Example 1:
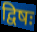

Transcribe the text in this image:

द्विषः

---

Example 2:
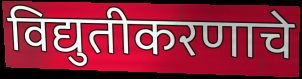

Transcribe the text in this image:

विद्युतीकरणाचे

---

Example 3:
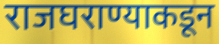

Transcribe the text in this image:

राजघराण्याकडून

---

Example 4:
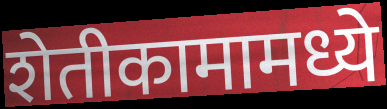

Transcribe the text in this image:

शेतीकामामध्ये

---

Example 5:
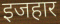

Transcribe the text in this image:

इजहार